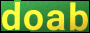
doab